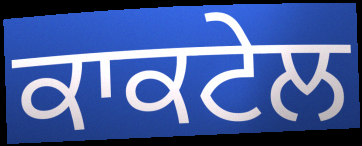
ਕਾਕਟੇਲ